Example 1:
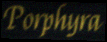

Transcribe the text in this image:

Porphyra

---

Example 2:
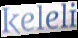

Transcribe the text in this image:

keleli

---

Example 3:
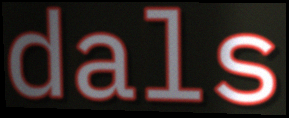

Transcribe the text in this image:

dals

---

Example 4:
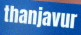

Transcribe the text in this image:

thanjavur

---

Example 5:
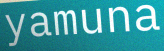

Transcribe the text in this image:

yamuna